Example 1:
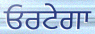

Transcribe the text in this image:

ਓਰਟੇਗਾ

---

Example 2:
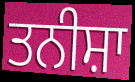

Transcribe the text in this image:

ਤਨੀਸ਼ਾ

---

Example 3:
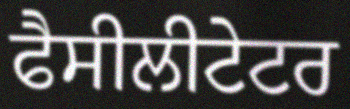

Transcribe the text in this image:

ਫੈਸੀਲੀਟੇਟਰ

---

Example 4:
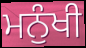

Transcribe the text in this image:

ਮਨੁੰਖੀ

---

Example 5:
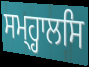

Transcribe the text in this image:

ਸਮ੍ਹ੍ਹਾਲਸਿ